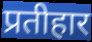
प्रतीहार